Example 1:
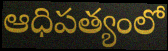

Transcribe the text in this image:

ఆధిపత్యంలో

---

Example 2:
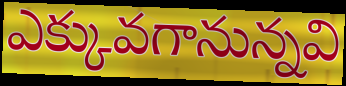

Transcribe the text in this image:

ఎక్కువగానున్నవి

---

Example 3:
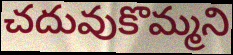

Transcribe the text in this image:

చదువుకొమ్మని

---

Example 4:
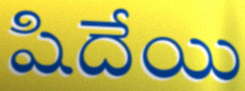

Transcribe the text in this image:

షిదేయి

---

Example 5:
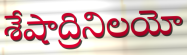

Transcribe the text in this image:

శేషాద్రినిలయో